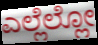
ಎಲ್ಲೆಲ್ಲೋ